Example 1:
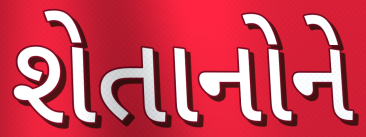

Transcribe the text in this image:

શેતાનોને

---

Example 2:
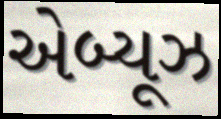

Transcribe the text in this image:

એબ્યૂઝ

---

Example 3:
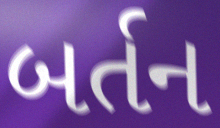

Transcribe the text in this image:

બર્તન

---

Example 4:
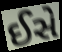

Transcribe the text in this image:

ઈસે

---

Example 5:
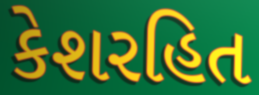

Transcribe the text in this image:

કેશરહિત